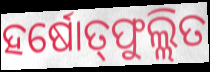
ହର୍ଷୋତ୍‌ଫୁଲ୍ଲିତ